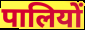
पालियों